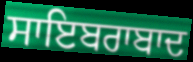
ਸਾਇਬਰਾਬਾਦ